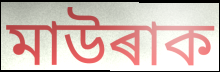
মাউৰাক